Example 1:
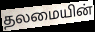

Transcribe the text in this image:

தலமையின்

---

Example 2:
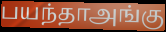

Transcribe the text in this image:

பயந்தாஅங்கு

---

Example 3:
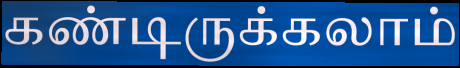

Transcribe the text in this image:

கண்டிருக்கலாம்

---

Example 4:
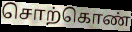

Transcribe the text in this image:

சொற்கொண்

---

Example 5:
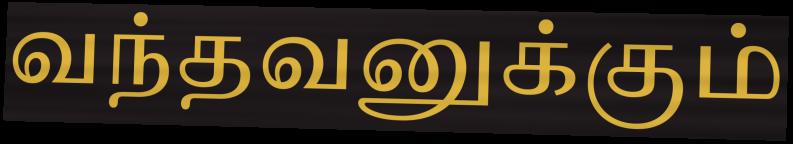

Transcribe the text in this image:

வந்தவனுக்கும்